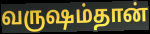
வருஷம்தான்